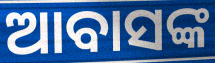
ଆବାସଙ୍କ